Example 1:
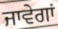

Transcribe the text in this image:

ਜਾਵੇਗਾਂ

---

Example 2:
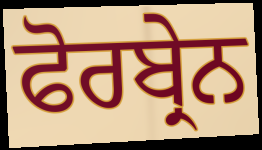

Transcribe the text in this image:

ਫੋਰਬ੍ਰੇਨ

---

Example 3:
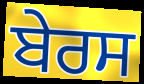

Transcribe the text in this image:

ਬੇਰਸ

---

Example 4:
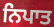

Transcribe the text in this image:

ਨਿਪਾਤ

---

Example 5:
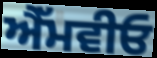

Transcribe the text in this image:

ਐੱਮਵੀਓ